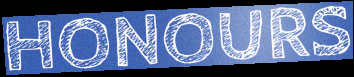
HONOURS